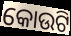
କୋଉଟି